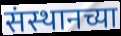
संस्थानच्या